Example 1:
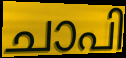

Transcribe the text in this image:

ചാപി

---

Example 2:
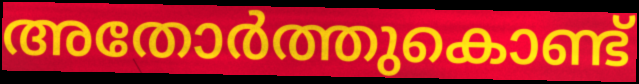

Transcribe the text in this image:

അതോർത്തുകൊണ്ട്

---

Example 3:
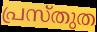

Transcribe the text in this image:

പ്രസ്തുത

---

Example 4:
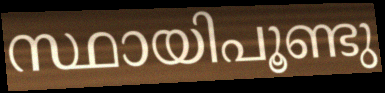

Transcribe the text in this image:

സ്ഥായിപൂണ്ടു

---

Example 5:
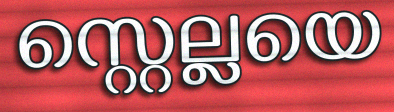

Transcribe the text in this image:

സ്റ്റെല്ലയെ